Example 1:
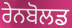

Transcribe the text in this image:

ਰੇਨਬੋਲਡ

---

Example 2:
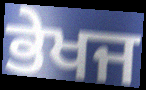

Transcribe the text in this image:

ਭੇਖਜ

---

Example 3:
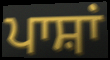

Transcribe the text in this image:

ਪਾਸ਼ਾਂ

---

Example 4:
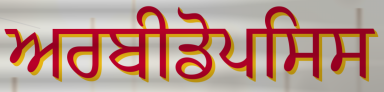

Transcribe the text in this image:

ਅਰਬੀਡੋਪਸਿਸ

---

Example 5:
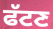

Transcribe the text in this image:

ਫੱਟਣ